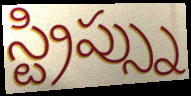
స్ట్రిప్స్ను